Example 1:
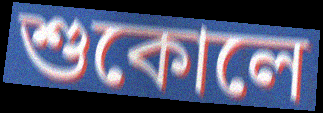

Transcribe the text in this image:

শুকোলে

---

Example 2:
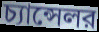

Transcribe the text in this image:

চ্যান্সেলর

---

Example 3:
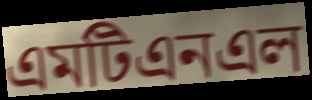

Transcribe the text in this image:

এমটিএনএল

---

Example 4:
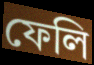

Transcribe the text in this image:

ফেলি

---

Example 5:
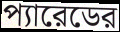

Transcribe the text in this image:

প্যারেডের